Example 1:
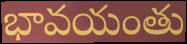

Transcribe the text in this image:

భావయంతు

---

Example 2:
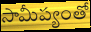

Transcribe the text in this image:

సామీప్యంతో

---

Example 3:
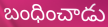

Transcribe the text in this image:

బంధించాడు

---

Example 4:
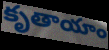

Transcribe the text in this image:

కృతాయాం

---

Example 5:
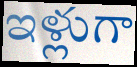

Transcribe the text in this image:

ఇళ్లుగా